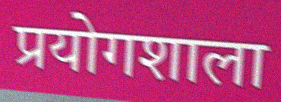
प्रयोगशाला